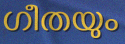
ഗീതയും